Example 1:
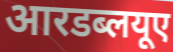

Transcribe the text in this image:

आरडब्लयूए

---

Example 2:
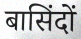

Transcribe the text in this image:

बासिंदों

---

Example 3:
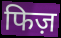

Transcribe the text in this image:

फिज़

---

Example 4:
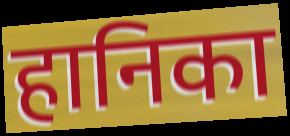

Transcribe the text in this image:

हानिका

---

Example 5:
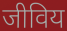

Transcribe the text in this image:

जीविय